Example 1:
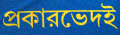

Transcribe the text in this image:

প্রকারভেদই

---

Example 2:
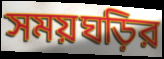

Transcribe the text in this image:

সময়ঘড়ির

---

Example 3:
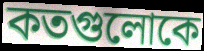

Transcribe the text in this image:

কতগুলোকে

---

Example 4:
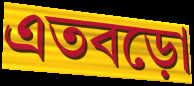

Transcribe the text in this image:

এতবড়ো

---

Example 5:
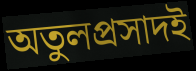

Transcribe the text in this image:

অতুলপ্রসাদই